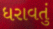
ધરાવતું